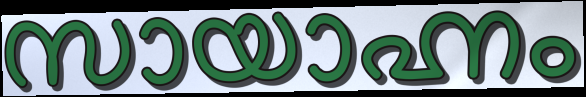
സായാഹ്നം